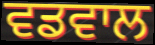
ਵਡਵਾਲ